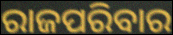
ରାଜପରିବାର